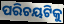
ପରିଚୟଟିକୁ